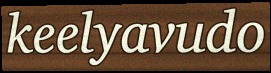
keelyavudo